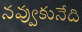
నవ్వుకునేది